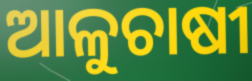
ଆଳୁଚାଷୀ